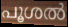
പൂശൽ